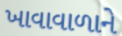
ખાવાવાળાને